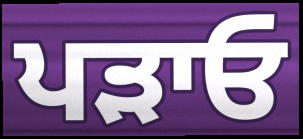
ਪੜਾਓ